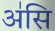
अ॑सि